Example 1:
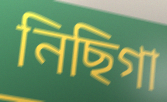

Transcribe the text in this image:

নিছিগা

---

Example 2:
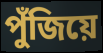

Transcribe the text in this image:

পুঁজিয়ে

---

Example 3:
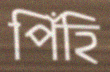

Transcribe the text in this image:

পিঁহি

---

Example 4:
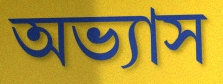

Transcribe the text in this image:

অভ্যাস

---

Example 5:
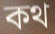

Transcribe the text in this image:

কথ